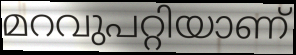
മറവുപറ്റിയാണ്